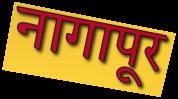
नागापूर